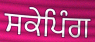
ਸਕੇਪਿੰਗ